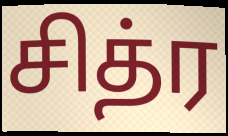
சித்ர